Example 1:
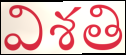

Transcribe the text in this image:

విశతి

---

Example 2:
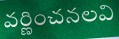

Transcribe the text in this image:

వర్ణించనలవి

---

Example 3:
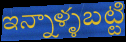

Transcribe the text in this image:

ఇన్నాళ్ళబట్టి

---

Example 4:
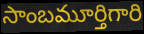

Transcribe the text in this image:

సాంబమూర్తిగారి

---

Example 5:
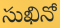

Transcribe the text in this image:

సుఖినో